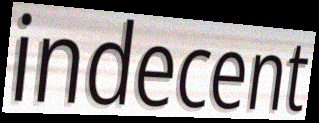
indecent